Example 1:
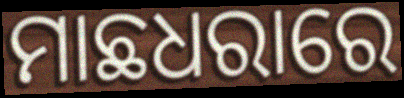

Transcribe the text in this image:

ମାଛଧରାରେ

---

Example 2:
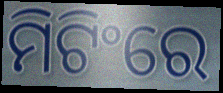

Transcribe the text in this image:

ମିଟିଂରେ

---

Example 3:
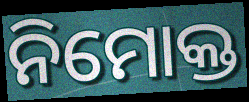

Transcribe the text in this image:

ନିମୋକ୍ତ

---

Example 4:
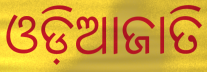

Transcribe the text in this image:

ଓଡ଼ିଆଜାତି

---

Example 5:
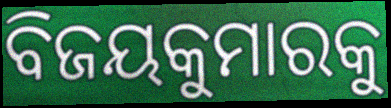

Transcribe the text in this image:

ବିଜୟକୁମାରକୁ